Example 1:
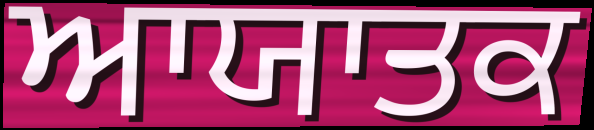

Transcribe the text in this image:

ਆਯਾਤਕ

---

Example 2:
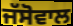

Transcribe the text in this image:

ਜੱਸੋਵਾਲ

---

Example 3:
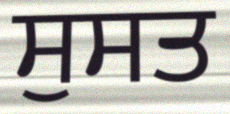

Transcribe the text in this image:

ਸੁਸਤ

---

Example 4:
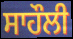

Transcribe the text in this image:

ਸਾਹੌਲੀ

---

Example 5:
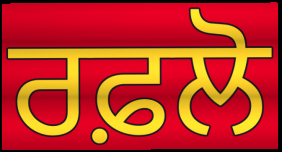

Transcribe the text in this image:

ਰਫ਼ਲੋ